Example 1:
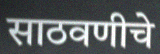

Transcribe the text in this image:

साठवणीचे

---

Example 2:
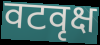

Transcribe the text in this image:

वटवृक्ष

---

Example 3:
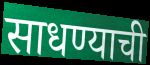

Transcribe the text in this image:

साधण्याची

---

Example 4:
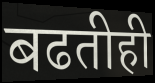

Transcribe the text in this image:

बढतीही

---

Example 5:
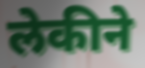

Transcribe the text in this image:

लेकीने